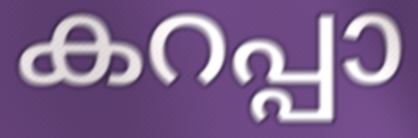
കറപ്പാ